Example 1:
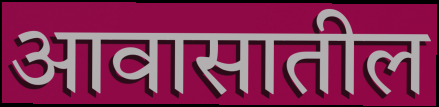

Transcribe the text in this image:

आवासातील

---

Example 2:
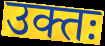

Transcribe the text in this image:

उक्तः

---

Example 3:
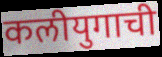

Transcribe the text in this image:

कलीयुगाची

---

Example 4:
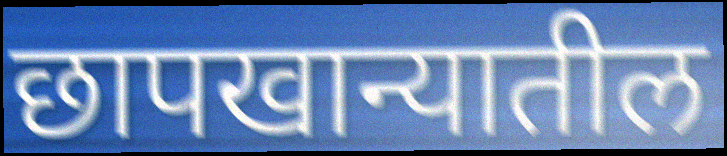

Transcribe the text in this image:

छापखान्यातील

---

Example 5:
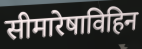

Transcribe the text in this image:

सीमारेषाविहिन